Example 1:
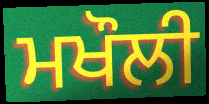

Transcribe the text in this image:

ਮਖੌਲੀ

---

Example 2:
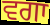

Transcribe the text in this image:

ਵਗਾ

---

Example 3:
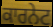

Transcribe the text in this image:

ਕਾਰਨੇਟ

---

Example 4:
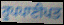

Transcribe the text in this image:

ਰੂਪਪਾਣੀਪਤ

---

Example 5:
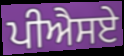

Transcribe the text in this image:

ਪੀਐਸਏ